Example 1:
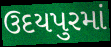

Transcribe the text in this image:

ઉદયપુરમાં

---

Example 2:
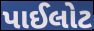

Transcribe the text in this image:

પાઈલોટ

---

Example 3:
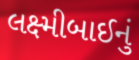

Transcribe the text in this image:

લક્ષ્મીબાઈનું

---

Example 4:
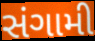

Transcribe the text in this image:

સંગામી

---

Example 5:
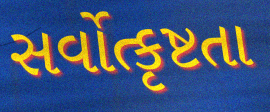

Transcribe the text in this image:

સર્વોત્કૃષ્ટતા